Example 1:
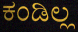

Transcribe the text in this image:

ಕಂಡಿಲ್ಲ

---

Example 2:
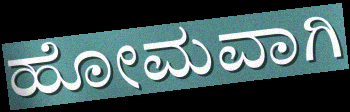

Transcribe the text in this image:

ಹೋಮವಾಗಿ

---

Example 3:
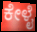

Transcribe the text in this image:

ಕೇಳೈ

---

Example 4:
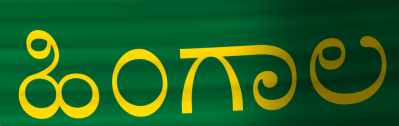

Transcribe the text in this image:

ಹಿಂಗಾಲ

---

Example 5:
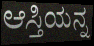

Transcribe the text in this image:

ಆಸ್ತಿಯನ್ನ